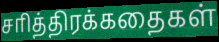
சரித்திரக்கதைகள்